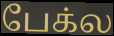
பேக்ல